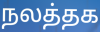
நலத்தக